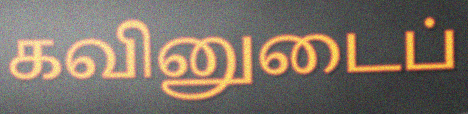
கவினுடைப்